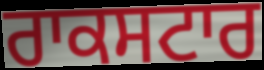
ਰਾਕਸਟਾਰ